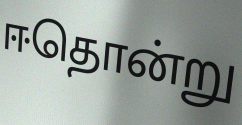
ஈதொன்று